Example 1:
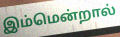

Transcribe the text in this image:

இம்மென்றால்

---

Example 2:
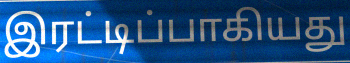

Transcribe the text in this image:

இரட்டிப்பாகியது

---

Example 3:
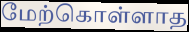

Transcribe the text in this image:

மேற்கொள்ளாத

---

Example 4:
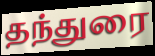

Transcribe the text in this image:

தந்துரை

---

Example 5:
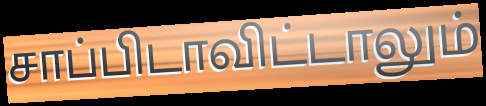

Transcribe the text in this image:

சாப்பிடாவிட்டாலும்